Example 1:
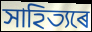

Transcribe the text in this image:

সাহিত্যৰে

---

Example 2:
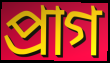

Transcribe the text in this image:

প্ৰাগ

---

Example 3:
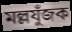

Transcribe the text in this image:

মল্লযুঁজক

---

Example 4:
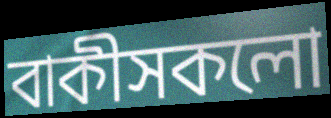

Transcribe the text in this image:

বাকীসকলো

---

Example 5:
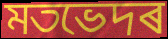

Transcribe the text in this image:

মতভেদৰ